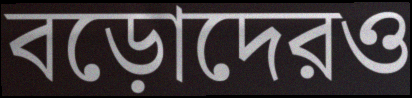
বড়োদেরও